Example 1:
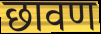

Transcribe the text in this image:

छावण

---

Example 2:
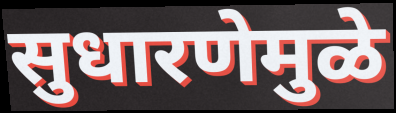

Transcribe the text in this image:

सुधारणेमुळे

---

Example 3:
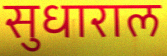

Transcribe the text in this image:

सुधाराल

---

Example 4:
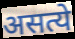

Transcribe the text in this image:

असत्ये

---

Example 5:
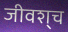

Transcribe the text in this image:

जीवश्च